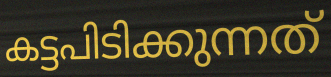
കട്ടപിടിക്കുന്നത്